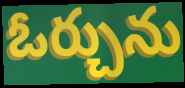
ఓర్చును